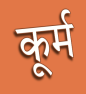
कूर्म